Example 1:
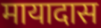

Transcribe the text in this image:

मायादास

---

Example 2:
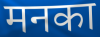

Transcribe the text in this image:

मनका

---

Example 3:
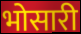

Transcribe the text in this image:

भोसारी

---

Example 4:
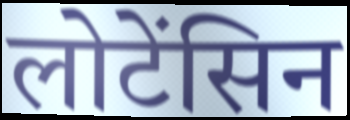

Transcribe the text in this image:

लोटेंसिन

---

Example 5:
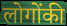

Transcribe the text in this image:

लोगोंकी